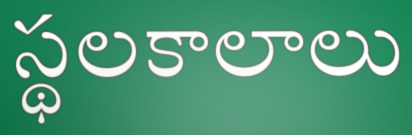
స్థలకాలాలు